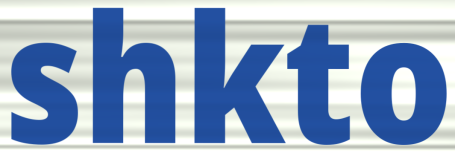
shkto